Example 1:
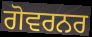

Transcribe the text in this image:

ਗੋਵਰਨਰ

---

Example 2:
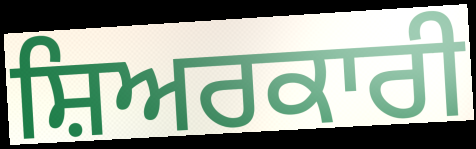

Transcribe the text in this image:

ਸ਼ਿਅਰਕਾਰੀ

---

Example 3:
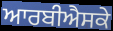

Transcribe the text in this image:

ਆਰਬੀਐਸਕੇ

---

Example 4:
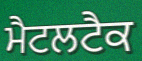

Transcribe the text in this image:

ਮੈਟਲਟੈਕ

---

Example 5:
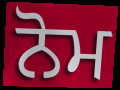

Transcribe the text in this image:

ਨੋਮ